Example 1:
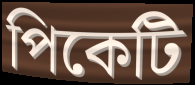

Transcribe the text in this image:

পিকেটি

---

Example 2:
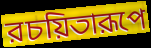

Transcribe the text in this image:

রচয়িতারূপে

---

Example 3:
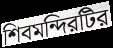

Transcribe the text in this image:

শিবমন্দিরটির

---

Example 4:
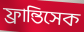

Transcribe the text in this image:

ফ্রান্তিসেক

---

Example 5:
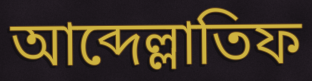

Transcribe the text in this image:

আব্দেল্লাতিফ